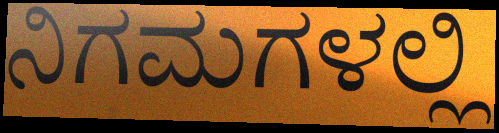
ನಿಗಮಗಳಲ್ಲಿ